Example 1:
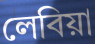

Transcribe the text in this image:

লেবিয়া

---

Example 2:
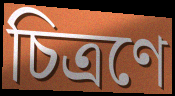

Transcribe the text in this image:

চিত্ৰণে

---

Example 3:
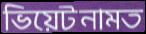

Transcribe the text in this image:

ভিয়েটনামত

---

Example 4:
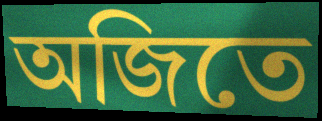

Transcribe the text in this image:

অজিতে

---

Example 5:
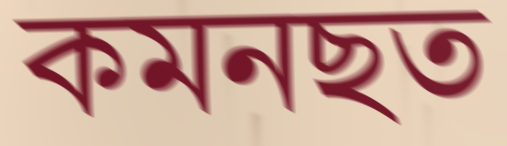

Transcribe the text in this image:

কমনছত